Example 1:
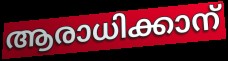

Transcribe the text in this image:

ആരാധിക്കാന്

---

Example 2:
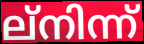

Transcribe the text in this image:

ല്നിന്ന്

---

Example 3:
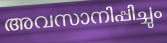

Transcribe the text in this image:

അവസാനിപ്പിച്ചും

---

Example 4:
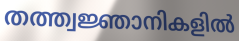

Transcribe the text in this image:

തത്ത്വജ്ഞാനികളിൽ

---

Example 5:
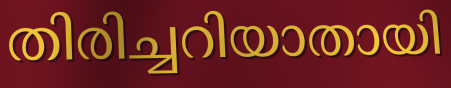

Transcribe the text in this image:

തിരിച്ചറിയാതായി